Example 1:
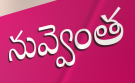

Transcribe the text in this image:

నువ్వెంత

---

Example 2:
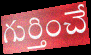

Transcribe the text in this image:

గుర్తించే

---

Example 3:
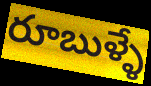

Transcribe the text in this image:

రూబుళ్ళే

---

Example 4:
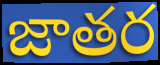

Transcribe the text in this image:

జాతర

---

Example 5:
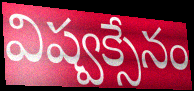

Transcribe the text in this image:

విష్వక్సేనం